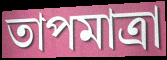
তাপমাত্রা